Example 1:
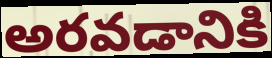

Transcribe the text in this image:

అరవడానికి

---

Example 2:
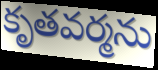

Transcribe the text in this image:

కృతవర్మను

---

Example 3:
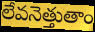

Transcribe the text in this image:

లేవనెత్తుతాం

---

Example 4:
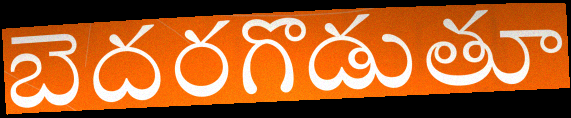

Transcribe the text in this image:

బెదరగొడుతూ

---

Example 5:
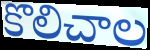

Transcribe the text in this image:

కొలిచాల